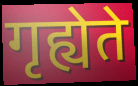
गृह्येते